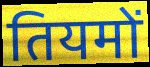
तियमों